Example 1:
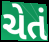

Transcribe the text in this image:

ચેતં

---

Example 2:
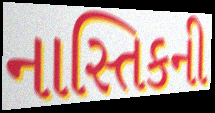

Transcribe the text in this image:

નાસ્તિકની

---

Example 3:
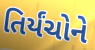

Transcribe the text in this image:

તિર્યંચોને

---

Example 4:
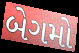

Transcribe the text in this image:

બેગમો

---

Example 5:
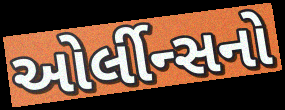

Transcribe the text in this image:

ઓર્લીન્સનો